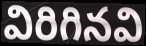
విరిగినవి